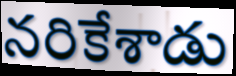
నరికేశాడు